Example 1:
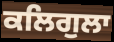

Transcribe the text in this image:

ਕਲਿਗੁਲਾ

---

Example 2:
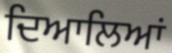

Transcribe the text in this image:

ਦਿਆਲਿਆਂ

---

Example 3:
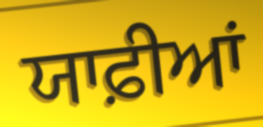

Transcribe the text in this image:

ਯਾਫ਼ੀਆਂ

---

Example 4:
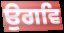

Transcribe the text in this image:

ਉਗਵਿ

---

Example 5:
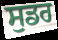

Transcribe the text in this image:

ਸੁਡਰ